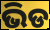
ଭିଡ